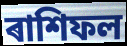
ৰাশিফল